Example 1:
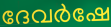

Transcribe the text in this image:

ദേവർഷേ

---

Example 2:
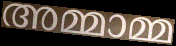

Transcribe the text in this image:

അമ്മാമ്മ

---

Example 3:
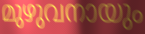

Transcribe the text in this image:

മുഴുവനായും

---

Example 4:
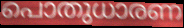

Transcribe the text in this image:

പൊതുധാരണ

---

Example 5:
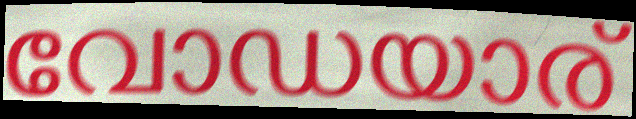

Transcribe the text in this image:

വോഡയാര്